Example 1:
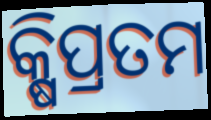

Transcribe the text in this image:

କ୍ଷିପ୍ରତମ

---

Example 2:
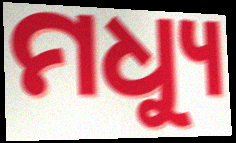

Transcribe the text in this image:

ମଧ୍ୟୁ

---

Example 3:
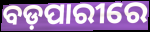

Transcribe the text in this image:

ବଡ଼ପାରୀରେ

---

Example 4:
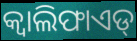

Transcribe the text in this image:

କ୍ୱାଲିଫାଏଡ୍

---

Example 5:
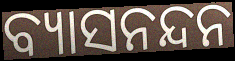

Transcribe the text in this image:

ବ୍ୟାସନନ୍ଦନ